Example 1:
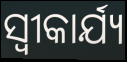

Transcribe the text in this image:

ସ୍ୱୀକାର୍ଯ୍ୟ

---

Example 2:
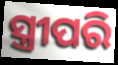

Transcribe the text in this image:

ସ୍ତ୍ରୀପରି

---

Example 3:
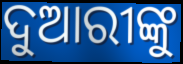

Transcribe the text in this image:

ଦୁଆରୀଙ୍କୁ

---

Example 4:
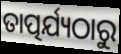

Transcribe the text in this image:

ତାତ୍ପର୍ଯ୍ୟଠାରୁ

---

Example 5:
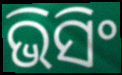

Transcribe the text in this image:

ଭିସିଂ